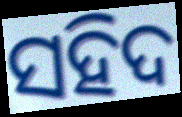
ସହିଦ